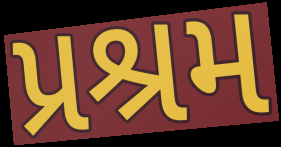
પ્રશ્રમ